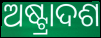
ଅଷ୍ଟ୍ରାଦଶ